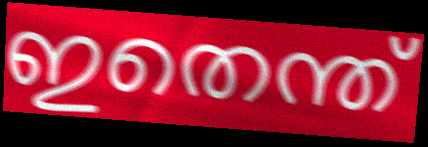
ഇതെന്ത്